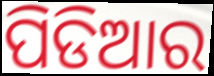
ପିଡିଆର